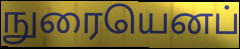
நுரையெனப்